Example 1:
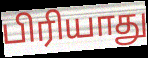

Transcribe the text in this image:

பிரியாது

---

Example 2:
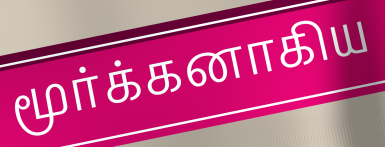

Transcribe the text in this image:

மூர்க்கனாகிய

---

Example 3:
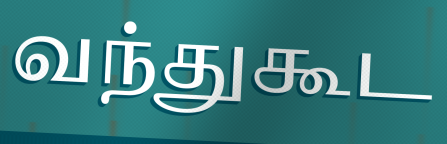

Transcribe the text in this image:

வந்துகூட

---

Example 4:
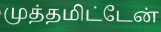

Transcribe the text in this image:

முத்தமிட்டேன்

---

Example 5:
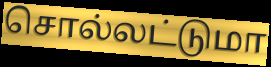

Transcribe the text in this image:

சொல்லட்டுமா